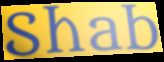
Shab